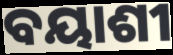
ବୟାଶୀ